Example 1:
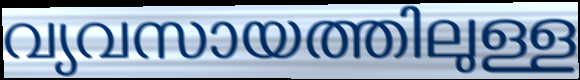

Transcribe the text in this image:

വ്യവസായത്തിലുള്ള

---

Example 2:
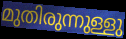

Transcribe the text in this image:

മുതിരുന്നുള്ളു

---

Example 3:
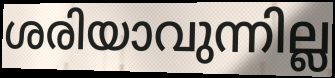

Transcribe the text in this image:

ശരിയാവുന്നില്ല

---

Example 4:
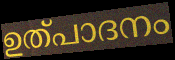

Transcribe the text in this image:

ഉത്പാദനം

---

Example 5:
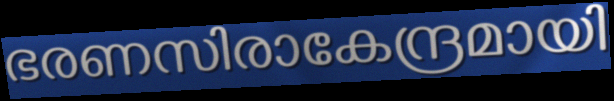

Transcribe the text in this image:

ഭരണസിരാകേന്ദ്രമായി